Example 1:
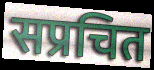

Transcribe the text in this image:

सप्रचित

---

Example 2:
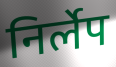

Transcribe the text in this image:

निर्लेप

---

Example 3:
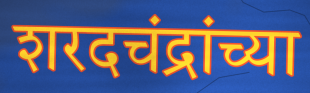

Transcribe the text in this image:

शरदचंद्रांच्या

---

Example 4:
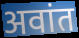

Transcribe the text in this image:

अवांत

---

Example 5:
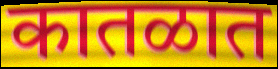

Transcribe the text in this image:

कातळात